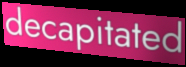
decapitated